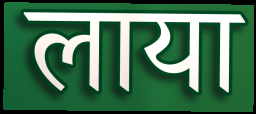
लाया